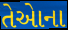
તેએાના